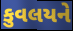
કુવલયને